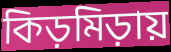
কিড়মিড়ায়